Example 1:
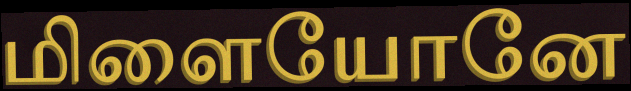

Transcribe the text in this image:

மிளையோனே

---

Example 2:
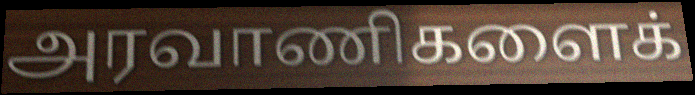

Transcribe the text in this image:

அரவாணிகளைக்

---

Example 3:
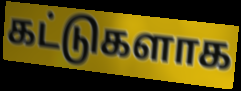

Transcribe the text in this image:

கட்டுகளாக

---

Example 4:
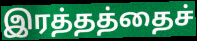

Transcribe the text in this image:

இரத்தத்தைச்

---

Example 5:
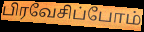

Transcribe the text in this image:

பிரவேசிப்போம்